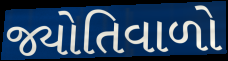
જ્યોતિવાળો